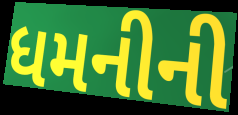
ધમનીની